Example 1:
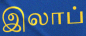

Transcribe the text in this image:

இலாப்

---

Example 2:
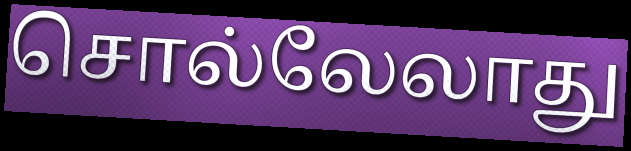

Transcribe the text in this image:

சொல்லேலாது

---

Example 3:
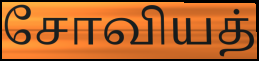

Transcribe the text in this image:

சோவியத்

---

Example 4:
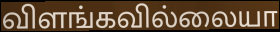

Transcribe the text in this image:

விளங்கவில்லையா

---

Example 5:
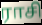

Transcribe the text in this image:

ராசி